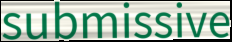
submissive